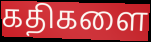
கதிகளை